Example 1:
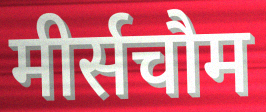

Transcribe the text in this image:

मीर्सचौम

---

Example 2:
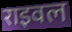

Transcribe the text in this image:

राइवल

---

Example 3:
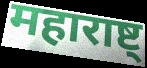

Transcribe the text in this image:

महाराष्ट्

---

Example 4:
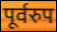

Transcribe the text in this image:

पूर्वरुप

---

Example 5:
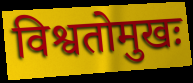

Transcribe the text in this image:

विश्वतोमुखः